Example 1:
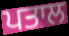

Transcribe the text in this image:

ਪਤਾਲ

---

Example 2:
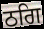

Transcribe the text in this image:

ਠਗਿ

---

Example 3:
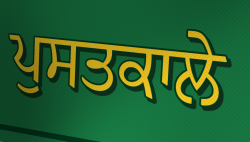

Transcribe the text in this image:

ਪੁਸਤਕਾਲੇ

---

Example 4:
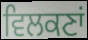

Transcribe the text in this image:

ਵਿਲਕਣਾਂ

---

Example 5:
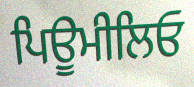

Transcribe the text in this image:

ਪਿਊਮੀਲਿਓ